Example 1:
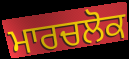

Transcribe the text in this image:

ਮਾਰਚਲੋਕ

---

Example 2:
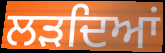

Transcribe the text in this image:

ਲੜਦਿਆਂ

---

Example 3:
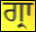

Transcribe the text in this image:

ਗ੍ਰਾ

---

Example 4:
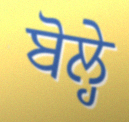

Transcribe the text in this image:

ਬੋਲ੍ਹੇ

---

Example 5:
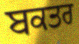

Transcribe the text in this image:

ਬਕਤਰ